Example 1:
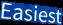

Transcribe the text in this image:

Easiest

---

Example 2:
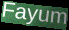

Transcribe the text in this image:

Fayum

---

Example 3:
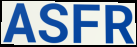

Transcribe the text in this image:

ASFR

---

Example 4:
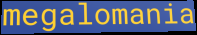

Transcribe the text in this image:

megalomania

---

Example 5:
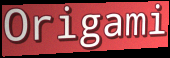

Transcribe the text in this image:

Origami